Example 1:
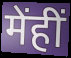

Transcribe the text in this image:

मेंहीं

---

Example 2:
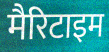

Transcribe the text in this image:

मैरिटाइम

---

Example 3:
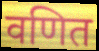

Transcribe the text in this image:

वणित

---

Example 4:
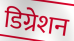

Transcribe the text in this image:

डिग्रेशन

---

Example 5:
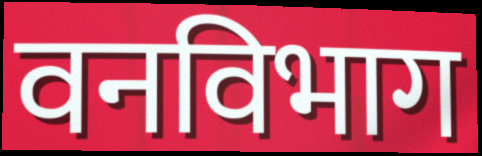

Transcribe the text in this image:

वनविभाग